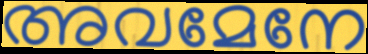
അവമേനേ